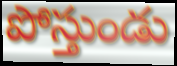
పోస్తుండు